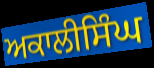
ਅਕਾਲੀਸਿੰਘ